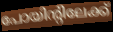
പോയിന്റിലേക്ക്